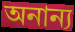
অনান্য